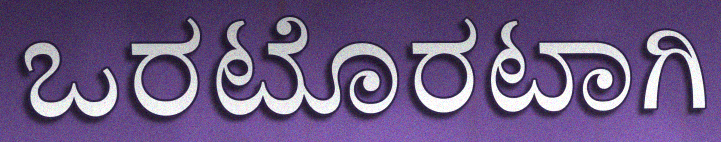
ಒರಟೊರಟಾಗಿ